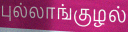
புல்லாங்குழல்